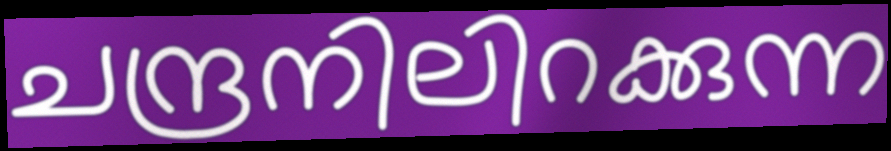
ചന്ദ്രനിലിറക്കുന്ന